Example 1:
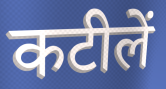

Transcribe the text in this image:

कटीलें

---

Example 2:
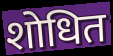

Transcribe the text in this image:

शोधित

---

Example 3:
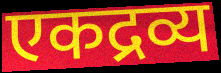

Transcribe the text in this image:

एकद्रव्य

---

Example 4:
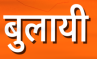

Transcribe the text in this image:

बुलायी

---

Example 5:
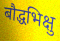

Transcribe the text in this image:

बौद्धभिक्षु